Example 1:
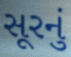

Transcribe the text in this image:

સૂરનું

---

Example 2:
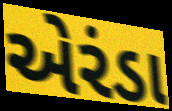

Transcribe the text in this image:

એરંડા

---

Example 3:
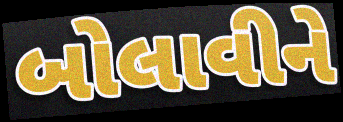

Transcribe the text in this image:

બોલાવીને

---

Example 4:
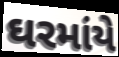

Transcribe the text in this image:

ઘરમાંયે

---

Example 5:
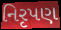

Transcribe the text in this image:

નિરૃપણ